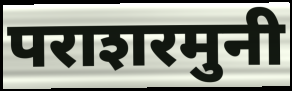
पराशरमुनी